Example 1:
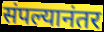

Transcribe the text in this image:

संपल्यानंतर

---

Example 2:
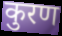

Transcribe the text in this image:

कुरण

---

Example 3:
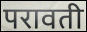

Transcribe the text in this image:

परावती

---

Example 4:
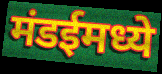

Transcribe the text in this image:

मंडईमध्ये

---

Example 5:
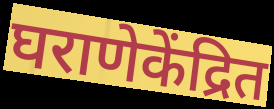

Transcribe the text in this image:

घराणेकेंद्रित